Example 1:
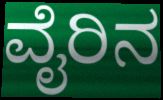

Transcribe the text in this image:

ವೈರಿನ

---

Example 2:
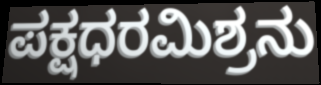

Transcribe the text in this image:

ಪಕ್ಷಧರಮಿಶ್ರನು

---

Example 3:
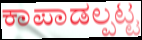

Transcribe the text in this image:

ಕಾಪಾಡಲ್ಪಟ್ಟ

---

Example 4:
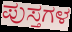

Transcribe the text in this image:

ಪುಸ್ತಗಳ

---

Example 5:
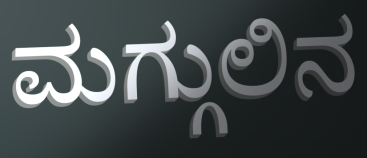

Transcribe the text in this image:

ಮಗ್ಗುಲಿನ